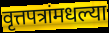
वृत्तपत्रांमधल्या